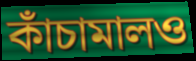
কাঁচামালও